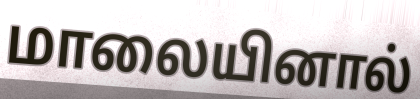
மாலையினால்